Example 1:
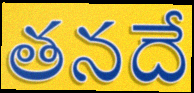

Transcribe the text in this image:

తనదే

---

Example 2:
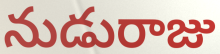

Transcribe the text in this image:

నుడురాజు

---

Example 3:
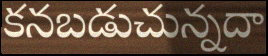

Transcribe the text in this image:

కనబడుచున్నదా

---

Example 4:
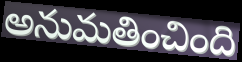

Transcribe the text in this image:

అనుమతించింది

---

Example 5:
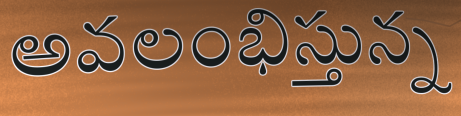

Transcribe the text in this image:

అవలంభిస్తున్న